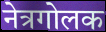
नेत्रगोलक